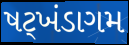
ષટ્ખંડાગમ